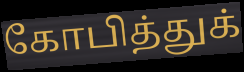
கோபித்துக்